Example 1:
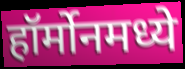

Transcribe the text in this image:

हॉर्मोनमध्ये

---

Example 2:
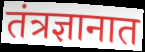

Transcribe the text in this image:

तंत्रज्ञानात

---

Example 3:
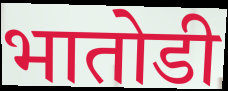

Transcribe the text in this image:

भातोडी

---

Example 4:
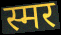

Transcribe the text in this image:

स्मर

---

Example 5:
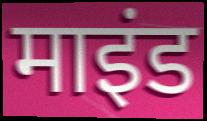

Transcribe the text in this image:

माइंड